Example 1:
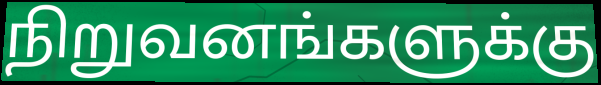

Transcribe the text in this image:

நிறுவனங்களுக்கு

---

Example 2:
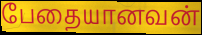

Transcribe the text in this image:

பேதையானவன்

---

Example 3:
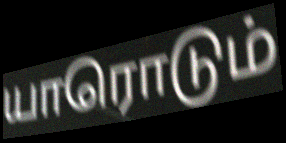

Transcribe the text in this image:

யாரொடும்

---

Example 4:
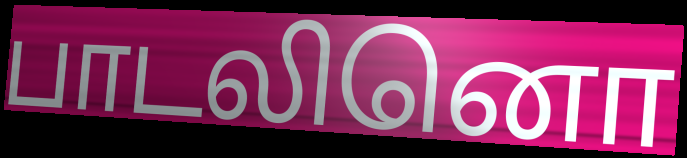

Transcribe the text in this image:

பாடலினொ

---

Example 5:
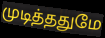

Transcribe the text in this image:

முடித்ததுமே